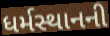
ધર્મસ્થાનની